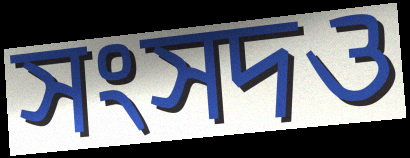
সংসদও